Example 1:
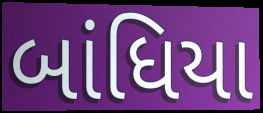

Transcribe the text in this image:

બાંધિયા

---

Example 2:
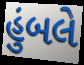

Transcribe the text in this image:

હુંબલે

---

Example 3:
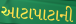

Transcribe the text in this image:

આટાપાટાની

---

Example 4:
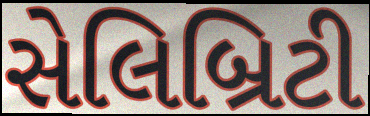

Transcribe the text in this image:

સેલિબ્રિટી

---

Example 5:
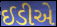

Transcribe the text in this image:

ઈડીએ